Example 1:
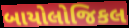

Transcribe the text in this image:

બાયોલોજિકલ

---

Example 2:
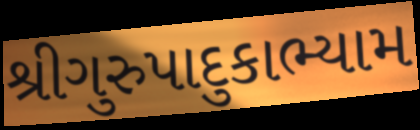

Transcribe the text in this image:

શ્રીગુરુપાદુકાભ્યામ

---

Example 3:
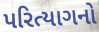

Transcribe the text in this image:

પરિત્યાગનો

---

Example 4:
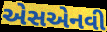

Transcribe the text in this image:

એસએનવી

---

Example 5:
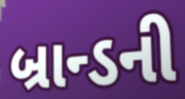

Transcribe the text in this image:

બ્રાન્ડની